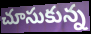
చూసుకున్న